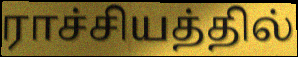
ராச்சியத்தில்